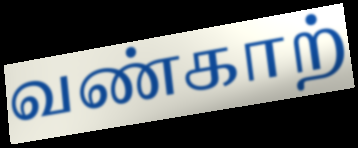
வண்காற்